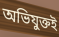
অভিযুক্তই